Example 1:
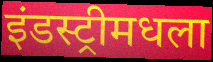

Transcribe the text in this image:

इंडस्ट्रीमधला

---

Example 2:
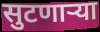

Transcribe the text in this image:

सुटणाऱ्या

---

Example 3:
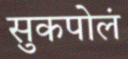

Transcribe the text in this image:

सुकपोलं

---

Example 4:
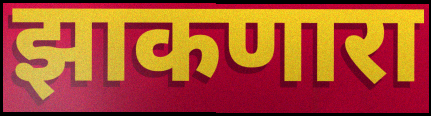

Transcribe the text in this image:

झाकणारा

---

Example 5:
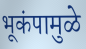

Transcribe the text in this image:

भूकंपामुळे